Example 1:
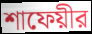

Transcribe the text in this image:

শাফেয়ীর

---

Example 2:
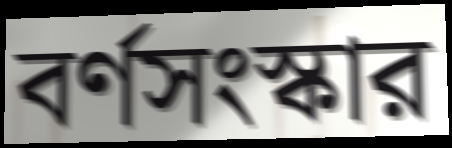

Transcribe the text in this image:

বর্ণসংস্কার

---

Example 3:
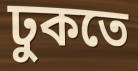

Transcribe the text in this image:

ঢুকতে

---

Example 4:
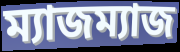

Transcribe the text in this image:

ম্যাজম্যাজ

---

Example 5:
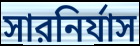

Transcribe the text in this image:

সারনির্যাস